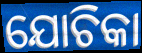
ଯୋଚିକା